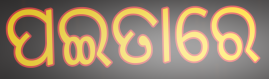
ପଇତାରେ